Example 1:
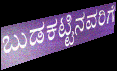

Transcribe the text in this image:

ಬುಡಕಟ್ಟಿನವರಿಗೆ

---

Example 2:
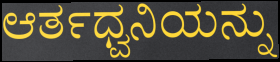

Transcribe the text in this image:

ಆರ್ತಧ್ವನಿಯನ್ನು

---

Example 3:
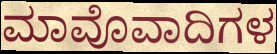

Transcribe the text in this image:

ಮಾವೊವಾದಿಗಳ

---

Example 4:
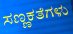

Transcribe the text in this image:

ಸಣ್ಣಕತೆಗಳು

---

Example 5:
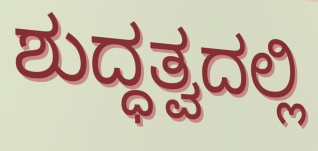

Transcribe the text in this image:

ಶುದ್ಧತ್ವದಲ್ಲಿ